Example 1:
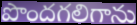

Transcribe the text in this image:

పొందగలిగాను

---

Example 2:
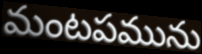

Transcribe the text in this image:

మంటపమును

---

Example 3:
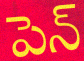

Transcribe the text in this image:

పెన్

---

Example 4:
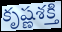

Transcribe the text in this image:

కృష్ణశక్తి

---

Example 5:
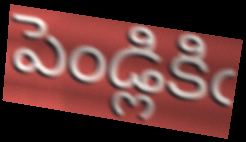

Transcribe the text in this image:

పెండ్లికిఁ